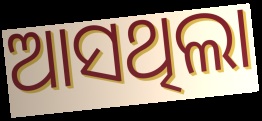
ଆସଥିଲା